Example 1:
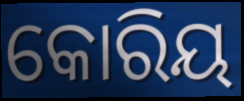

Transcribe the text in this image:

କୋରିୟ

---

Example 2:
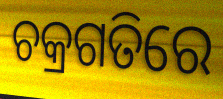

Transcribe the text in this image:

ଚକ୍ରଗତିରେ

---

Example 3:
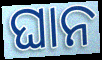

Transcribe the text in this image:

ଘାନ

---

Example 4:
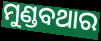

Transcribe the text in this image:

ମୁଣ୍ଡବଥାର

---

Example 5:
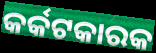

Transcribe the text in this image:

କର୍କଟକାରକ